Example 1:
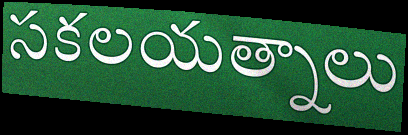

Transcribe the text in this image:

సకలయత్నాలు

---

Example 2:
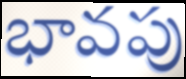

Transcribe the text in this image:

భావపు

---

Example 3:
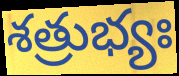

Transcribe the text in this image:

శత్రుభ్యః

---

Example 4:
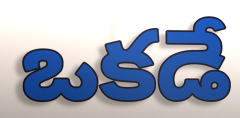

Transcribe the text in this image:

ఒకడే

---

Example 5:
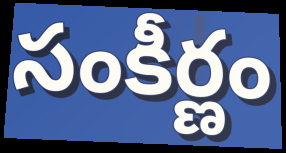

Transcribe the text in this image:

సంకీర్ణం